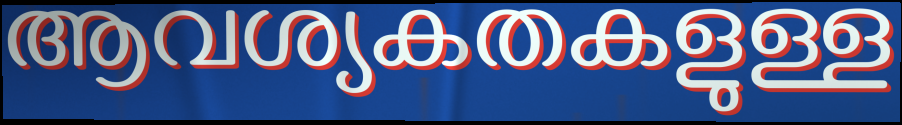
ആവശ്യകതകളുള്ള